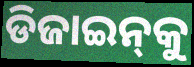
ଡିଜାଇନ୍‌କୁ